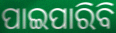
ପାଇପାରିବି